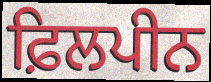
ਫ਼ਿਲਪੀਨ